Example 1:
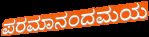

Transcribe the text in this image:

ಪರಮಾನಂದಮಯ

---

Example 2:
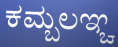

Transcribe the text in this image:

ಕಮ್ಬಲಞ್ಚ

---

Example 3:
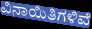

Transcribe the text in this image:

ವಿನಾಯಿತಿಗಳಿವೆ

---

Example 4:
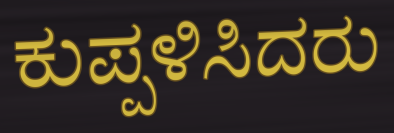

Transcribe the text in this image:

ಕುಪ್ಪಳಿಸಿದರು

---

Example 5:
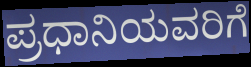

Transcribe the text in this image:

ಪ್ರಧಾನಿಯವರಿಗೆ